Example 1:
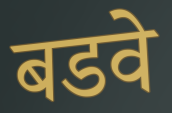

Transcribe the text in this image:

बडवे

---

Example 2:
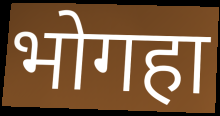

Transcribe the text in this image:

भोगहा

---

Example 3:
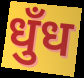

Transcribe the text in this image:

धुँध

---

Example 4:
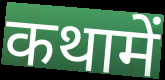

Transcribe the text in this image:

कथामें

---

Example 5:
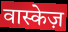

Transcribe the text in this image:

वास्केज़